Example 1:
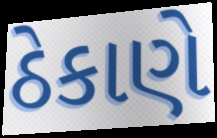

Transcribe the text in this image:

ઠેકાણે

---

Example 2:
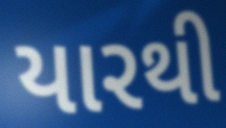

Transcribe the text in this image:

યારથી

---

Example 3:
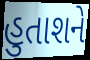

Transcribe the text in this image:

હુતાશને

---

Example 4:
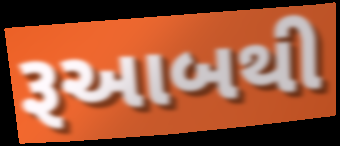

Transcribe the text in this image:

રૂઆબથી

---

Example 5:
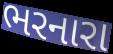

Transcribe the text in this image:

ભરનારા